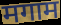
मगाम